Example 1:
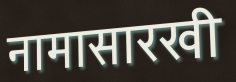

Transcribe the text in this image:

नामासारखी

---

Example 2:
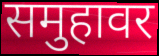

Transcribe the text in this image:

समुहावर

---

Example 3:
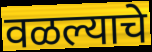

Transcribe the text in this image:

वळल्याचे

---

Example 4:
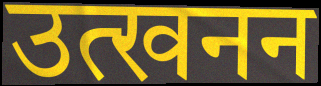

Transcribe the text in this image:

उत्‍खनन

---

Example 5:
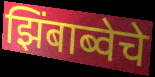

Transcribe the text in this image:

झिंबाब्वेचे